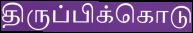
திருப்பிக்கொடு